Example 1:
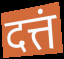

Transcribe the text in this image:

दत्तं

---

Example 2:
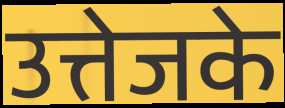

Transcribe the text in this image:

उत्तेजके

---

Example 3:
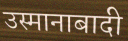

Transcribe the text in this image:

उस्मानाबादी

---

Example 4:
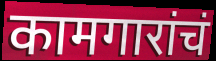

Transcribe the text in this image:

कामगारांचं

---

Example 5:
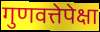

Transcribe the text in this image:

गुणवत्तेपेक्षा